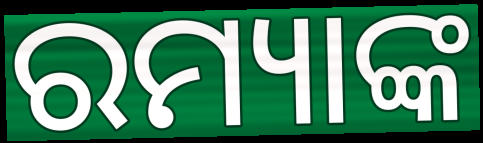
ରମ୍ୟାଙ୍କ